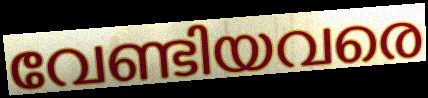
വേണ്ടിയവരെ